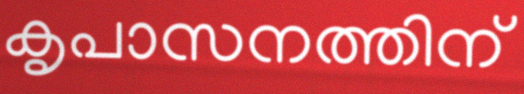
കൃപാസനത്തിന്